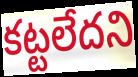
కట్టలేదని